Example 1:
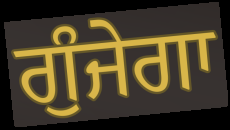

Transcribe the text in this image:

ਗੁੰਜੇਗਾ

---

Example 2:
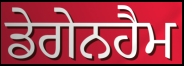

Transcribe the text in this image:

ਡੇਗੇਨਹੈਮ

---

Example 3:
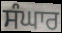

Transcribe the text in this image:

ਸੰਘਾਰ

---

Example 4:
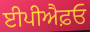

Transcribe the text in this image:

ਈਪੀਐਫ਼ਓ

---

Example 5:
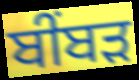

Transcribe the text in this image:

ਬੀੰਬੜ